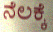
ನೆಲಕ್ಕೆ